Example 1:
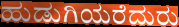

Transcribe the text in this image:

ಹುಡುಗಿಯರೆದುರು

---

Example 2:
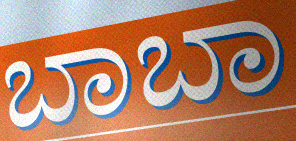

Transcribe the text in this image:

ಬಾಬಾ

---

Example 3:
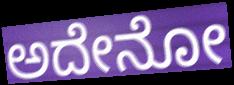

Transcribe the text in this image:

ಅದೇನೋ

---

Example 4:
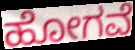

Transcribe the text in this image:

ಹೋಗವೆ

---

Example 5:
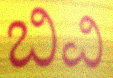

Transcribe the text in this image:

ಬಿವಿ